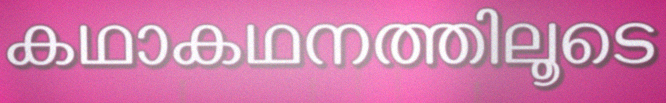
കഥാകഥനത്തിലൂടെ